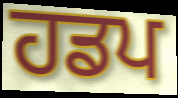
ਹਡਪ